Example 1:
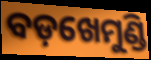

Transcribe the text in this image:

ବଡ଼ଖେମୁଣ୍ଡି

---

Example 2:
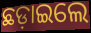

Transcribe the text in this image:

ଛଡ଼ାଇଲେ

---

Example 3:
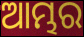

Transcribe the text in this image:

ଆମ୍ଭର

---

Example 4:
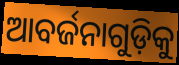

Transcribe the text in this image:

ଆବର୍ଜନାଗୁଡ଼ିକୁ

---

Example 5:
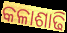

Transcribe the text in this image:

କଳାଶାଢି